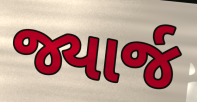
જ્યાર્જ